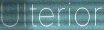
Ulterior